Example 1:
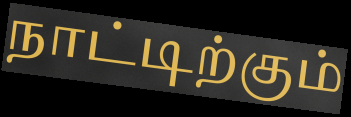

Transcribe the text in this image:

நாட்டிற்கும்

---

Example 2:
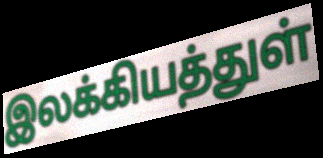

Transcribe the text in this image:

இலக்கியத்துள்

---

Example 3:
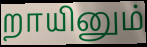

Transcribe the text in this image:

றாயினும்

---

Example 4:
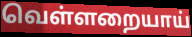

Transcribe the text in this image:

வெள்ளறையாய்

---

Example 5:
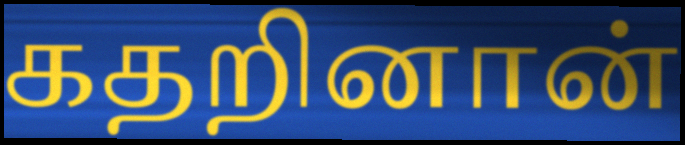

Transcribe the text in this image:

கதறினான்